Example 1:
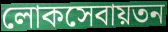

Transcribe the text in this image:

লোকসেবায়তন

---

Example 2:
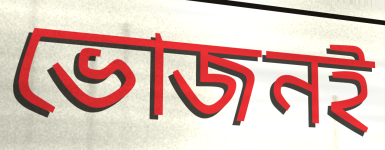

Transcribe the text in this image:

ভোজনই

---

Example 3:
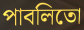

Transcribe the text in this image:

পাবলিতো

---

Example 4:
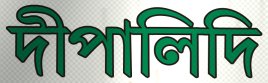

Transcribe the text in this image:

দীপালিদি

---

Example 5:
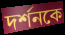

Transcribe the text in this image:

দর্শনকে